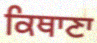
ਕਿਥਾਣਾ